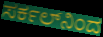
ಸರ್ಕಲ್‌ನಿಂದ